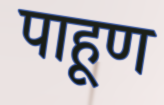
पाहूण